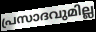
പ്രസാദവുമില്ല